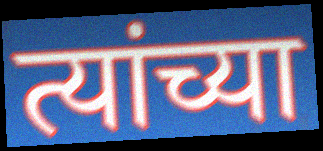
त्यांच्या